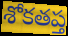
శోకతప్త